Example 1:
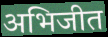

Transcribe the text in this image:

अभिजीत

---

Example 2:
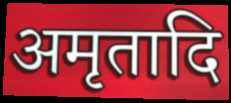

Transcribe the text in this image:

अमृतादि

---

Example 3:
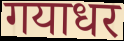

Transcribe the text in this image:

गयाधर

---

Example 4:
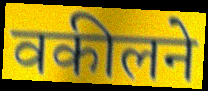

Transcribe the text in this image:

वकीलने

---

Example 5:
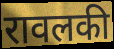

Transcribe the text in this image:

रावलकी